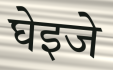
घेइजे